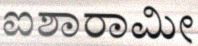
ಐಶಾರಾಮೀ